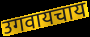
उगवायचाय